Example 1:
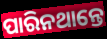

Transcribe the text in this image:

ପାରିନଥାନ୍ତେ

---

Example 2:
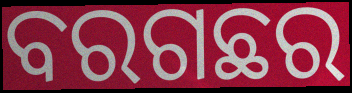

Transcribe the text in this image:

ବରଗଛର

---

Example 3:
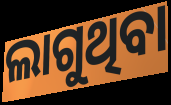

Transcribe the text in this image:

ଲାଗୁଥିବା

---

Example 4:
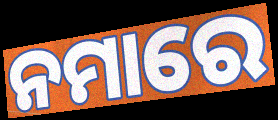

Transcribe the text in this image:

ନମାରେ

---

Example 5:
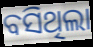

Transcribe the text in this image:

ବସିଥିଲା